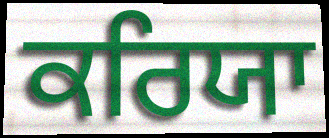
ਕਰਿਯਾ